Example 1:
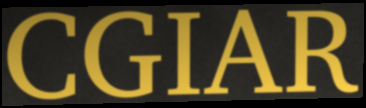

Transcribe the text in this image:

CGIAR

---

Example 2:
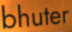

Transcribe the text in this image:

bhuter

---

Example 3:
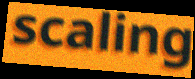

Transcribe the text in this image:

scaling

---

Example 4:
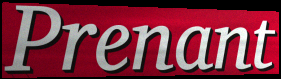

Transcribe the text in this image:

Prenant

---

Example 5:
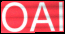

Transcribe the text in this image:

OAI